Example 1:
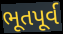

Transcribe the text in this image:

ભૂતપૂર્વ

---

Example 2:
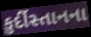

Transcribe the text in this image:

કુર્દીસ્તાનના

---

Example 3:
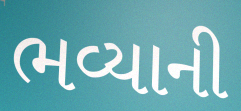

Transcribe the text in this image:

ભવ્યાની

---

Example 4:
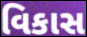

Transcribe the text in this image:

વિકાસ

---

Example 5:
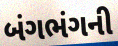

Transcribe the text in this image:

બંગભંગની